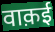
वाक़ई